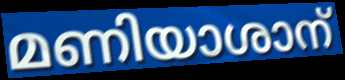
മണിയാശാന്